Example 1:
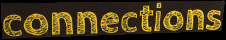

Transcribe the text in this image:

connections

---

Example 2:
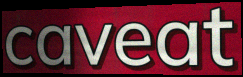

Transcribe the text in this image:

caveat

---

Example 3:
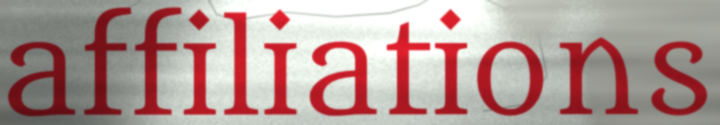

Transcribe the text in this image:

affiliations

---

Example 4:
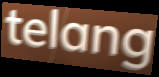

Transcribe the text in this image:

telang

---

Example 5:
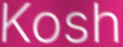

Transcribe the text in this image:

Kosh